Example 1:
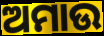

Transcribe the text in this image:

ଅମାଉ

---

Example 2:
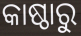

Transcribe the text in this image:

କାଷ୍ଠାରୁ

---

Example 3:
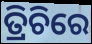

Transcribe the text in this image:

ତ୍ରିଚିରେ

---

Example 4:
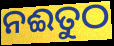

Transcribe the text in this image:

ନଈତୁଠ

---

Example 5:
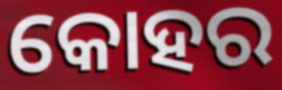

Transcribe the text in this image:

କୋହର